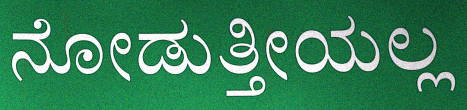
ನೋಡುತ್ತೀಯಲ್ಲ